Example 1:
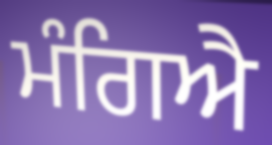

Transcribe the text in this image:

ਮੰਗਿਐ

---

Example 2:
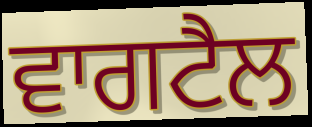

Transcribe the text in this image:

ਵਾਗਟੈਲ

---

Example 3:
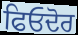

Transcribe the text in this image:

ਫਿਓਦੋਰ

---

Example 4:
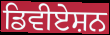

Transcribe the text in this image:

ਡਿਵੀਏਸ਼ਨ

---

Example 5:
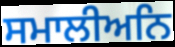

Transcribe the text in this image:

ਸਮਾਲੀਅਨਿ